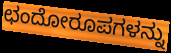
ಛಂದೋರೂಪಗಳನ್ನು